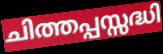
ചിത്തപ്പസ്സദ്ധി